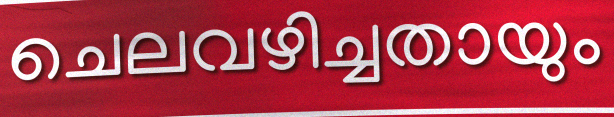
ചെലവഴിച്ചതായും